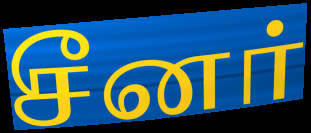
சீனர்